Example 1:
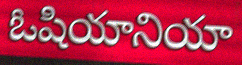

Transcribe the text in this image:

ఓషియానియా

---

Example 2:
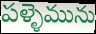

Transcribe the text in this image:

పళ్ళెమును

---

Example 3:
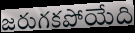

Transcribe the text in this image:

జరుగకపోయేది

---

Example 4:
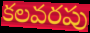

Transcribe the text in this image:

కలవరపు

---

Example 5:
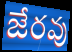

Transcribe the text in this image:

జేరవు